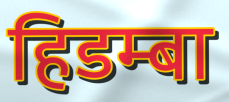
हिडम्बा